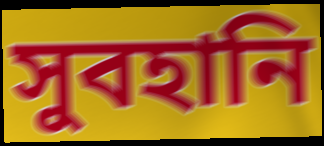
সুবহানি